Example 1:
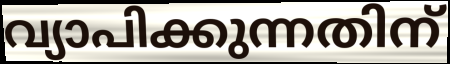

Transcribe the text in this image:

വ്യാപിക്കുന്നതിന്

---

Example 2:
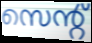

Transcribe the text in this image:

സെന്റ്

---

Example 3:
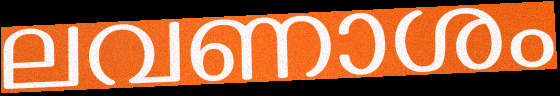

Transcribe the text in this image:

ലവണാശം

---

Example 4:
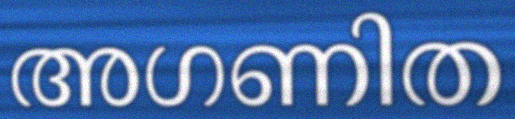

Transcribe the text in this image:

അഗണിത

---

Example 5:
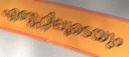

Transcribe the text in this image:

എസ്റ്റേറ്റിലൂടെയും